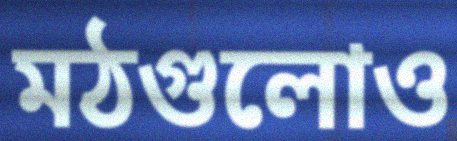
মঠগুলোও